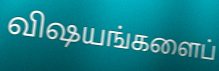
விஷயங்களைப்